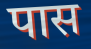
पास